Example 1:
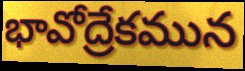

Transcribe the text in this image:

భావోద్రేకమున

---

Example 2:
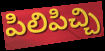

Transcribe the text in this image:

పిలిపిచ్చి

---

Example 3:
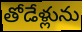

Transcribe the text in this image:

తోడేళ్లును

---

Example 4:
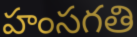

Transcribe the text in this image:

హంసగతి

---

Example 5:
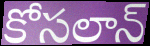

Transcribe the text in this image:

కోసలాన్